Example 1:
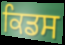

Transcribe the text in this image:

ਕਿਡਸ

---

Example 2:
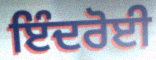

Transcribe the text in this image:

ਇੰਦਰੋਈ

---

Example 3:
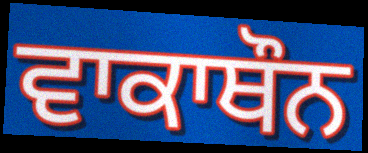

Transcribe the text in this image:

ਵਾਕਾਥੌਨ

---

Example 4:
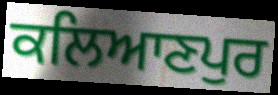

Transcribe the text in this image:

ਕਲਿਆਣਪੁਰ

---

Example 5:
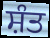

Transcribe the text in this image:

ਸ਼ੰਤ